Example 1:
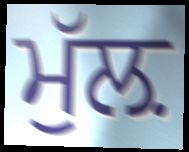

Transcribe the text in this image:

ਮੁੱਲ਼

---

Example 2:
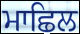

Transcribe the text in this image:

ਮਾਛਿਲ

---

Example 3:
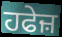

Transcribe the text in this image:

ਹਫੇਜ਼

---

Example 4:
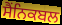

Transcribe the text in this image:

ਸੈੰਨਿਕਬਲ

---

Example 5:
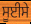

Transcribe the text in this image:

ਸੂਈਸੇ